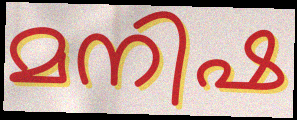
മനിഷ